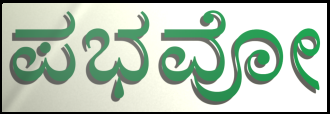
ಪಭವೋ